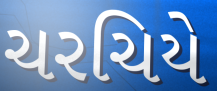
ચરચિયે